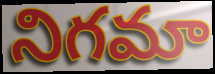
నిగమా